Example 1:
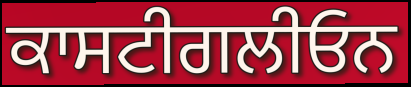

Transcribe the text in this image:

ਕਾਸਟੀਗਲੀਓਨ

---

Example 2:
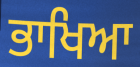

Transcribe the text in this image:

ਭਾਖਿਆ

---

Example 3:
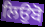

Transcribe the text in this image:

ਲਿਉਬੋ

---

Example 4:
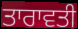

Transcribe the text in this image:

ਤਾਰਾਵਤੀ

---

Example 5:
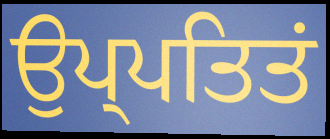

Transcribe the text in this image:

ਉਪ੍ਪਤਿਤਂ